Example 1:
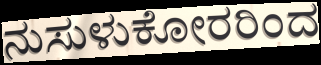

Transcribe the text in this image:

ನುಸುಳುಕೋರರಿಂದ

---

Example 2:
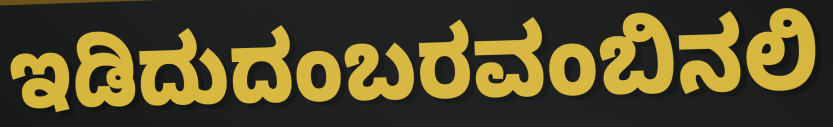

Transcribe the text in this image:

ಇಡಿದುದಂಬರವಂಬಿನಲಿ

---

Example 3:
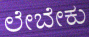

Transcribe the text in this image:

ಲೇಬೇಕು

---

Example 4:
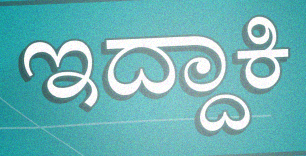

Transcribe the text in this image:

ಇದ್ದಾಕಿ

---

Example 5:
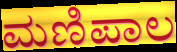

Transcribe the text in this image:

ಮಣಿಪಾಲ